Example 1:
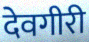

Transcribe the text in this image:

देवगीरी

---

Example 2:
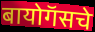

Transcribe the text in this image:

बायोगॅसचे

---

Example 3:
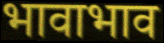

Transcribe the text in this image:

भावाभाव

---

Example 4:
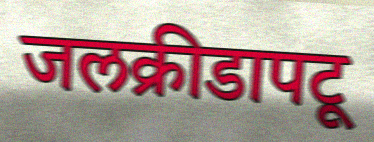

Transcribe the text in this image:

जलक्रीडापटू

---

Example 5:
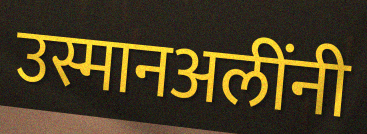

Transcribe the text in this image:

उस्मानअलींनी